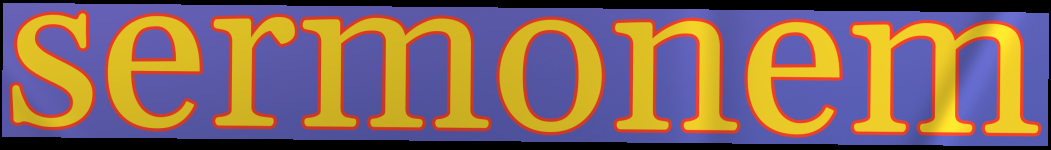
sermonem